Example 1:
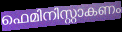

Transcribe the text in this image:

ഫെമിനിസ്റ്റാകണം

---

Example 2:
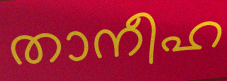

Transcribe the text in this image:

താനീഹ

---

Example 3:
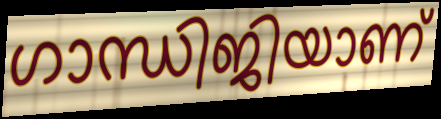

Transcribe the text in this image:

ഗാന്ധിജിയാണ്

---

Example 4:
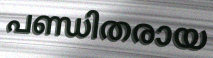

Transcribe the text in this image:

പണ്ഡിതരായ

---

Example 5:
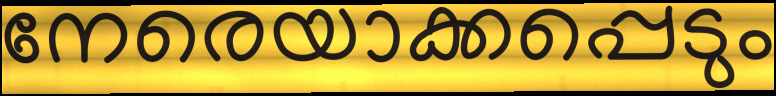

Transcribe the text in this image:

നേരെയാക്കപ്പെടും